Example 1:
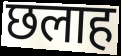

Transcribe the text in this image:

छलाह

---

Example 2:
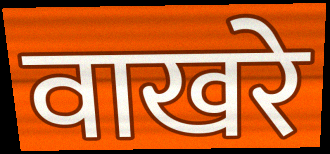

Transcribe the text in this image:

वाखरे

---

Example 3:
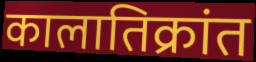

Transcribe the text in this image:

कालातिक्रांत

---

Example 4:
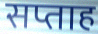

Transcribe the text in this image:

सप्‍ताह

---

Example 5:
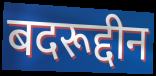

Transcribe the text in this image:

बदरूद्दीन